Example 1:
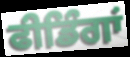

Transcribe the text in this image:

ਫੀਡਿੰਗਾਂ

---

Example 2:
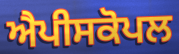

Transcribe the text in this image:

ਐਪੀਸਕੋਪਲ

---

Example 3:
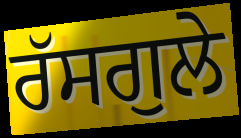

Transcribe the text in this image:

ਰੱਸਗੁਲੇ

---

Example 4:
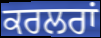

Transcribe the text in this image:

ਕਰਲਰਾਂ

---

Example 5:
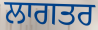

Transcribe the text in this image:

ਲਾਗਤਰ